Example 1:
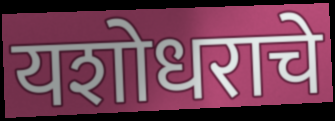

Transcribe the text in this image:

यशोधराचे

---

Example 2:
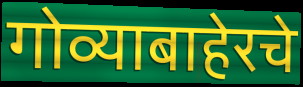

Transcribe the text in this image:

गोव्याबाहेरचे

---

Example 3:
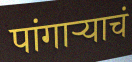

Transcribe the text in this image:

पांगाऱ्याचं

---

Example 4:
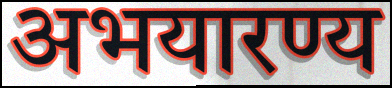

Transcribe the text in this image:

अभयारण्य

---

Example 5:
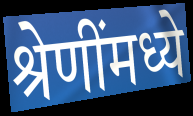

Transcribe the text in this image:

श्रेणींमध्ये